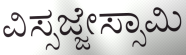
ವಿಸ್ಸಜ್ಜೇಸ್ಸಾಮಿ